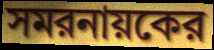
সমরনায়কের